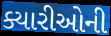
ક્યારીઓની